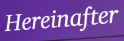
Hereinafter